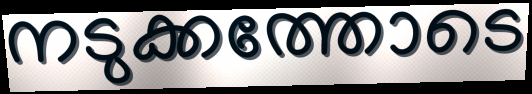
നടുക്കത്തോടെ